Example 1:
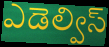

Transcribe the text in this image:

ఎడెల్విస్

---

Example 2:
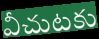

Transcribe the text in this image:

వీచుటకు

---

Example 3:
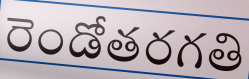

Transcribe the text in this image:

రెండోతరగతి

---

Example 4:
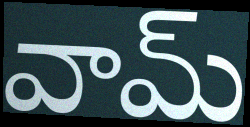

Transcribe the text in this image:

వామ్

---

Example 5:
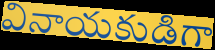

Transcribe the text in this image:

వినాయకుడిగా